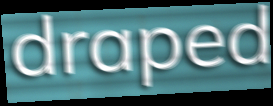
draped